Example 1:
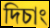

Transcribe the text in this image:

দিচাং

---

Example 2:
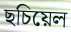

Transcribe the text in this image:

ছচিয়েল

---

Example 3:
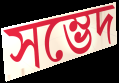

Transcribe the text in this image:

সম্ভেদ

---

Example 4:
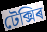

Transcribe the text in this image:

টেক্সিৰ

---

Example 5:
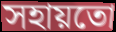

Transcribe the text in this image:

সহায়তো